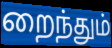
றைந்தும்